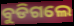
ବୁଡିଗଲେ